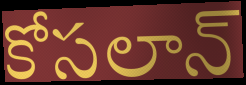
కోసలాన్